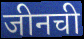
जीनची